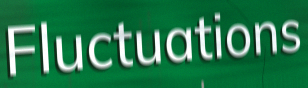
Fluctuations